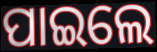
ପାଇଲେ